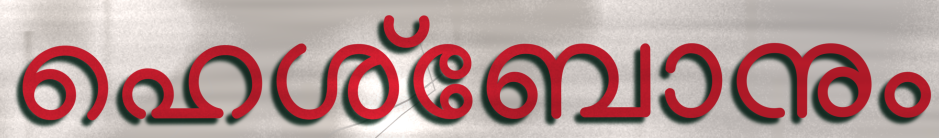
ഹെശ്ബോനും